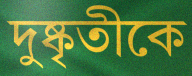
দুষ্কৃতীকে